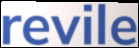
revile